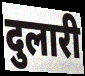
दुलारी